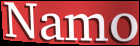
Namo